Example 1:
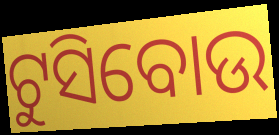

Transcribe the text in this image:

ଟୁସିବୋଉ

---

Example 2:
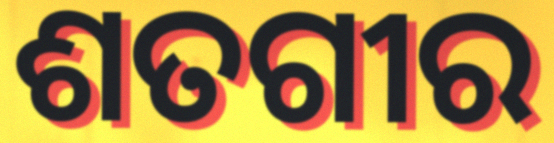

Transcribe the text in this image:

ଶତଗୀର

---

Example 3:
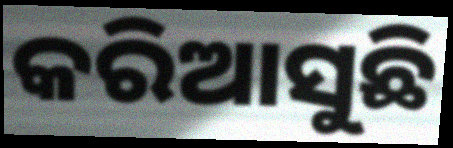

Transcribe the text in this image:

କରିଆସୁଛି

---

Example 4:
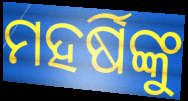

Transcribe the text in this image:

ମହର୍ଷିଙ୍କୁ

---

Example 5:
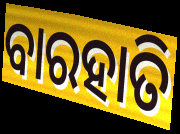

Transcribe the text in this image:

ବାରହାତି